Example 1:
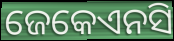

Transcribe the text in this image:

ଜେକେଏନସି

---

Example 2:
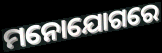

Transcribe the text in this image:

ମନୋଯୋଗରେ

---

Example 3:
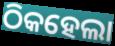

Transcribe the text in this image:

ଠିକହେଲା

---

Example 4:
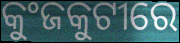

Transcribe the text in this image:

କୁଂଜକୁଟୀରେ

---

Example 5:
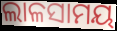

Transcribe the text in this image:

ଲାଳସାମୟ